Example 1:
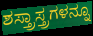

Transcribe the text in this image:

ಶಸ್ತ್ರಾಸ್ತ್ರಗಳನ್ನೂ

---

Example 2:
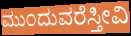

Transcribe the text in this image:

ಮುಂದುವರೆಸ್ತೀವಿ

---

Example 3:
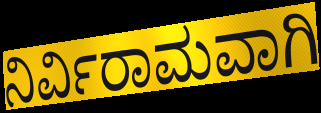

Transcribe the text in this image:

ನಿರ್ವಿರಾಮವಾಗಿ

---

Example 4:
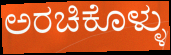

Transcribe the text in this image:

ಅರಚಿಕೊಳ್ಳು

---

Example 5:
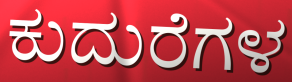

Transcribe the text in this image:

ಕುದುರೆಗಳ